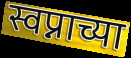
स्वप्नाच्या